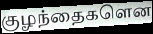
குழந்தைகளென